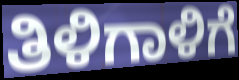
ತಿಳಿಗಾಳಿಗೆ